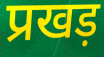
प्रखड़